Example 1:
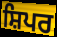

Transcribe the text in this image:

ਸ਼ਿਪਰ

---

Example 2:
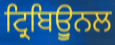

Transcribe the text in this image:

ਟ੍ਰਿਬਿਊੁਨਲ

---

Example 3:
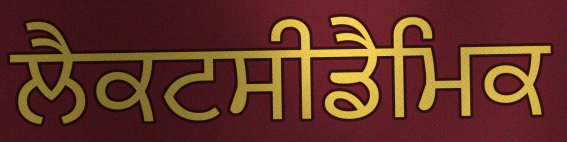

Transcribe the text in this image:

ਲੈਕਟਸੀਡੈਮਿਕ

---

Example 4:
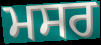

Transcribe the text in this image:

ਮਸਰ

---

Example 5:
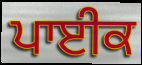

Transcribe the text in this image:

ਪਾਈਕ